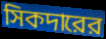
সিকদারের